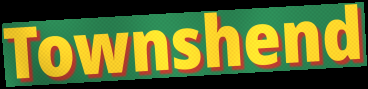
Townshend